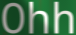
Ohh